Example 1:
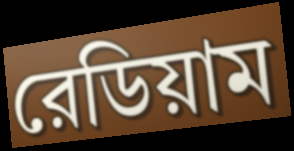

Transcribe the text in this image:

রেডিয়াম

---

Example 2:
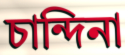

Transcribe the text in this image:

চান্দিনা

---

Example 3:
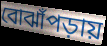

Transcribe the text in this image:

বোঝাঁপড়ায়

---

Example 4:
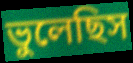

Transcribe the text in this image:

ভুলেছিস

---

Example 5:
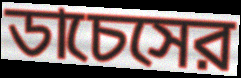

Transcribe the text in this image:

ডাচেসের